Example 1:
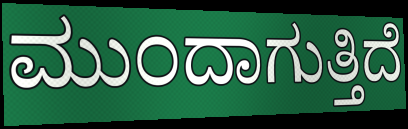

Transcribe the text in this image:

ಮುಂದಾಗುತ್ತಿದೆ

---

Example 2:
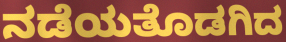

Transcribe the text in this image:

ನಡೆಯತೊಡಗಿದ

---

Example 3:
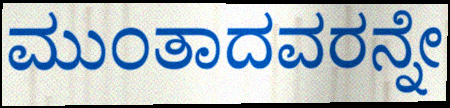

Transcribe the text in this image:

ಮುಂತಾದವರನ್ನೇ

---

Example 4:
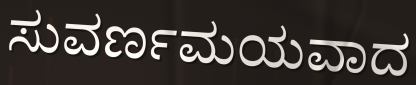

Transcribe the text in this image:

ಸುವರ್ಣಮಯವಾದ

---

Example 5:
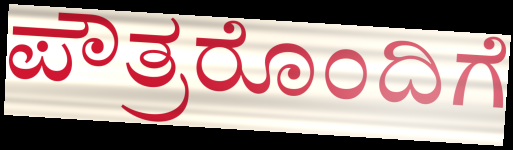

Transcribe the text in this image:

ಪೌತ್ರರೊಂದಿಗೆ